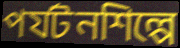
পর্যটনশিল্পে